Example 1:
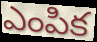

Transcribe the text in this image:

ఎంపిక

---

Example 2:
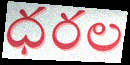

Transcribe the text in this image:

ధరల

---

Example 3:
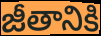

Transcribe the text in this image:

జీతానికి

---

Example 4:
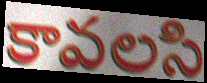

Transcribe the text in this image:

కావలసి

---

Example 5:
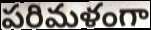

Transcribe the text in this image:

పరిమళంగా